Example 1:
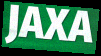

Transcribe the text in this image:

JAXA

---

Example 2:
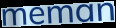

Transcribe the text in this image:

meman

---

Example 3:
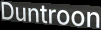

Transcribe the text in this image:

Duntroon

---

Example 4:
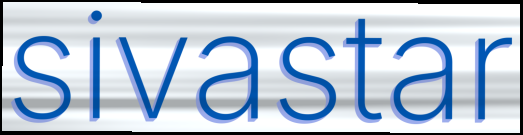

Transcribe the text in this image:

sivastar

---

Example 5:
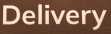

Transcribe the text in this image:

Delivery